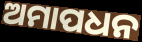
ଅମାପଧନ